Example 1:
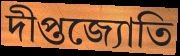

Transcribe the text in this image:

দীপ্তজ্যোতি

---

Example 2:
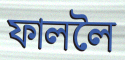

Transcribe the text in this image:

ফাললৈ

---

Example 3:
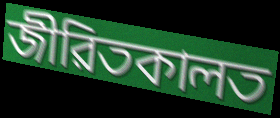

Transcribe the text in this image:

জীৱিতকালত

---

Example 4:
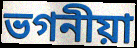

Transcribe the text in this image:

ভগনীয়া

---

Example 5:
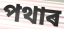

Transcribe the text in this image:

পথাৰ